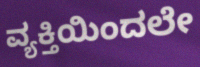
ವ್ಯಕ್ತಿಯಿಂದಲೇ